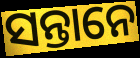
ସନ୍ତାନେ